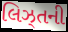
લિઝ્તની